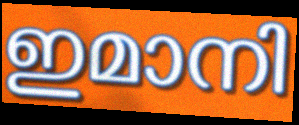
ഇമാനി